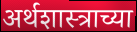
अर्थशास्त्राच्या